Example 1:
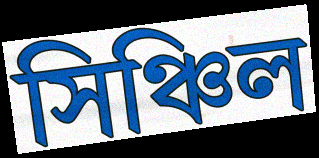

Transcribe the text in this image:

সিঞ্চিল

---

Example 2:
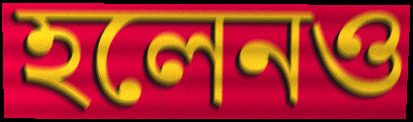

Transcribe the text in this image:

হলেনও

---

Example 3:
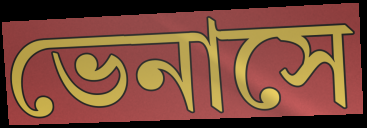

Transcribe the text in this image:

ভেনাসে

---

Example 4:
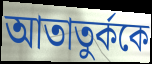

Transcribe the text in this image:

আতাতুর্ককে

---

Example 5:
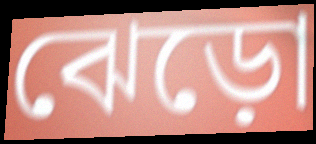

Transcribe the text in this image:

ঝেড়ো